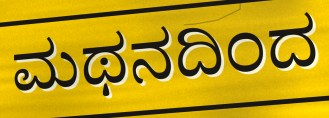
ಮಥನದಿಂದ